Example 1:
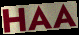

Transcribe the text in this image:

HAA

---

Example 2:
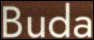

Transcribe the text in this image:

Buda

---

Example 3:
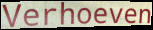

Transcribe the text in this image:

Verhoeven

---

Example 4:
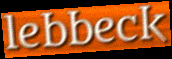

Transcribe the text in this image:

lebbeck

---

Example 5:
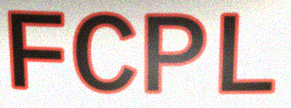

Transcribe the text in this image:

FCPL